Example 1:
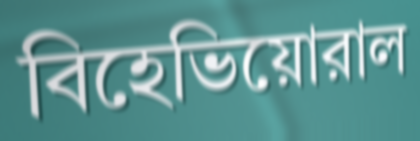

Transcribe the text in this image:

বিহেভিয়োরাল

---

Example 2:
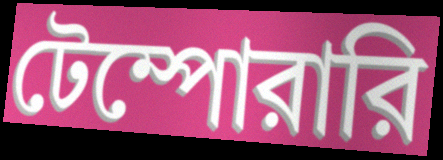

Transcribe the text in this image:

টেম্পোরারি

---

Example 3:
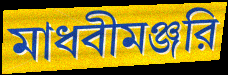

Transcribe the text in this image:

মাধবীমঞ্জরি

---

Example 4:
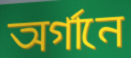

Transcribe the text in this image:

অর্গানে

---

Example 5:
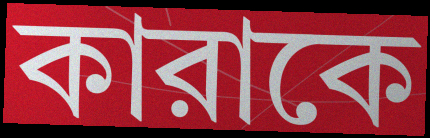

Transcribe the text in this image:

কারাকে